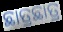
ଛାତ୍ରଛାତ୍ର